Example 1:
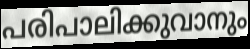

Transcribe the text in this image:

പരിപാലിക്കുവാനും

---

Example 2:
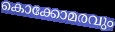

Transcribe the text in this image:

കൊക്കോമരവും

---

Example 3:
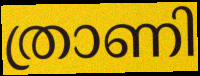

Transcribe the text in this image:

ത്രാണി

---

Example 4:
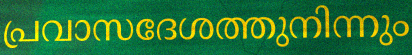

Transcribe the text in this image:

പ്രവാസദേശത്തുനിന്നും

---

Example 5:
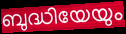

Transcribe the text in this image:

ബുദ്ധിയേയും